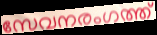
സേവനരംഗത്ത്